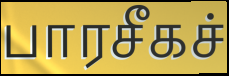
பாரசீகச்